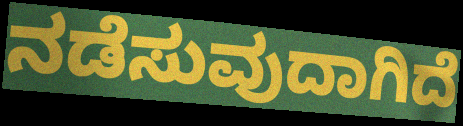
ನಡೆಸುವುದಾಗಿದೆ